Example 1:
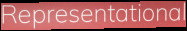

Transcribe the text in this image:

Representational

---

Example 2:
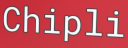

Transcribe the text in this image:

Chipli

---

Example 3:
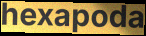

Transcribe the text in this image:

hexapoda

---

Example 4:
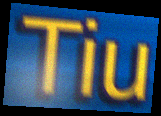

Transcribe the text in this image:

Tiu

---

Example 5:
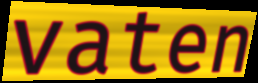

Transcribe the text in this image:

vaten